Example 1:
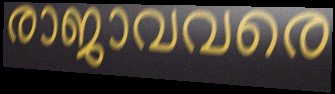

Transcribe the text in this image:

രാജാവവരെ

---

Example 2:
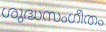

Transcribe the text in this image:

ശുദ്ധസംഗീതം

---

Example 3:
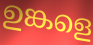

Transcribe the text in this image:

ഉങ്കളെ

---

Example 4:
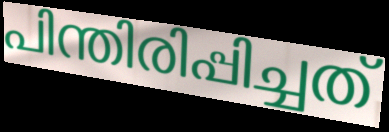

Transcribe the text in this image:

പിന്തിരിപ്പിച്ചത്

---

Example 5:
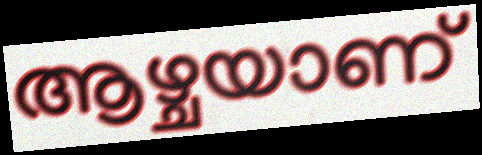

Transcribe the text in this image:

ആഴ്ചയാണ്